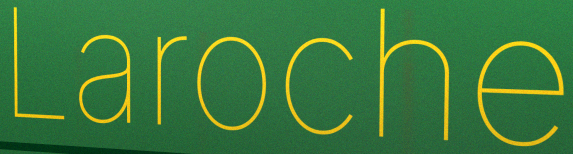
Laroche